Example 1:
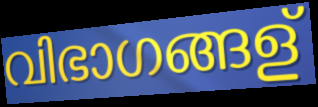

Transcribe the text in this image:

വിഭാഗങ്ങള്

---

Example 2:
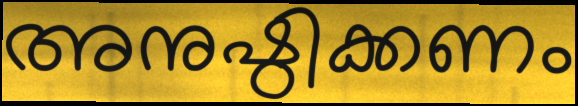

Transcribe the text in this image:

അനുഷ്ഠിക്കണം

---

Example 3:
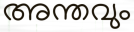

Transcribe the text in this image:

അന്തവും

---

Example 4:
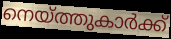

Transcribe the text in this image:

നെയ്ത്തുകാർക്ക്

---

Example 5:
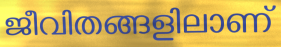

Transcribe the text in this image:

ജീവിതങ്ങളിലാണ്